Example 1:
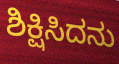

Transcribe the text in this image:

ಶಿಕ್ಷಿಸಿದನು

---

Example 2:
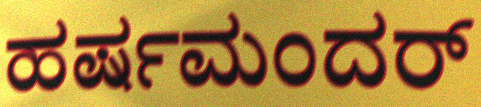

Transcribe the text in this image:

ಹರ್ಷಮಂದರ್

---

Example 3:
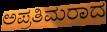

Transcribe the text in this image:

ಅಪ್ರತಿಮರಾದ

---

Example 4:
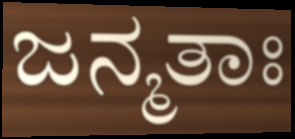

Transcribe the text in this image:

ಜನ್ಮತಾಃ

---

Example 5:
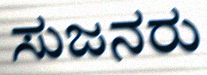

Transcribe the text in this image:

ಸುಜನರು